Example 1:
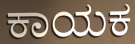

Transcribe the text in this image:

ಕಾಯಕ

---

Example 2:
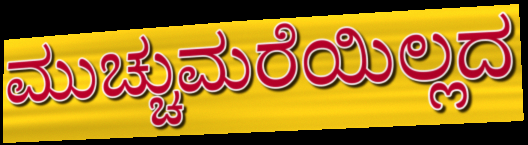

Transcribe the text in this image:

ಮುಚ್ಚುಮರೆಯಿಲ್ಲದ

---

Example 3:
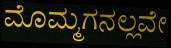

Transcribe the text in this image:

ಮೊಮ್ಮಗನಲ್ಲವೇ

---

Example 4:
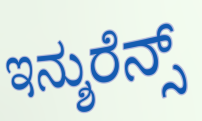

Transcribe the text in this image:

ಇನ್ಶುರೆನ್ಸ್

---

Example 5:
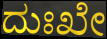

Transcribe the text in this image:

ದುಃಖೇ